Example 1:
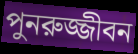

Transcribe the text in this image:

পুনরুজ্জীবন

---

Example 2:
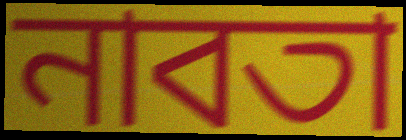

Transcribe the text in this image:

নাবতা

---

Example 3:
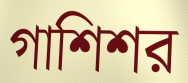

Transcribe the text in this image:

গাশিশর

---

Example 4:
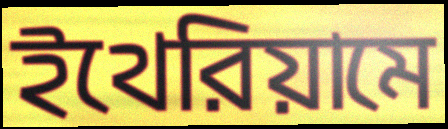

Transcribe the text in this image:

ইথেরিয়ামে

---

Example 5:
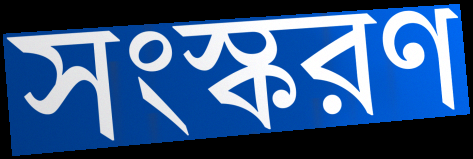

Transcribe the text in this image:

সংস্করণ